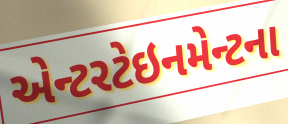
એન્ટરટેઇનમેન્ટના